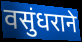
वसुंधराने